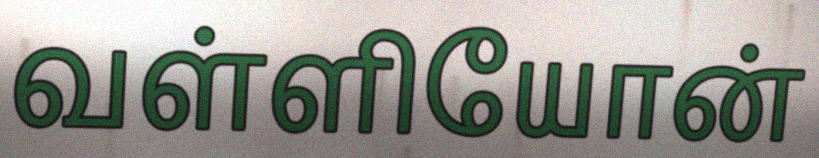
வள்ளியோன்